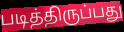
படித்திருப்பது